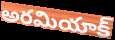
అరమియాక్